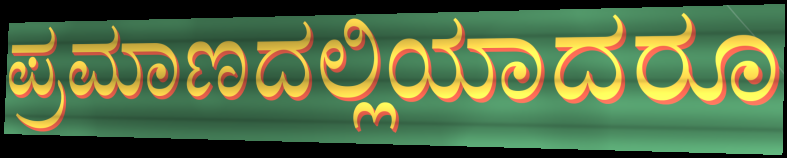
ಪ್ರಮಾಣದಲ್ಲಿಯಾದರೂ